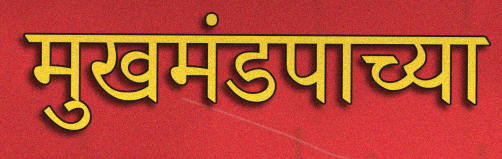
मुखमंडपाच्या